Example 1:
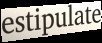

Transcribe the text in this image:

estipulate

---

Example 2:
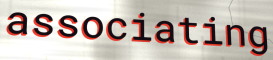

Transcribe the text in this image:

associating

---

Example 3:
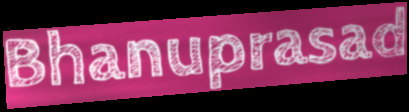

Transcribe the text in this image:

Bhanuprasad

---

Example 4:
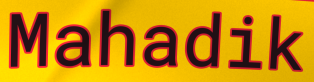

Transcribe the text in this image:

Mahadik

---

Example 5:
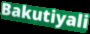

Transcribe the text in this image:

Bakutiyali